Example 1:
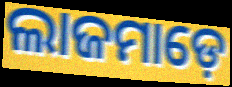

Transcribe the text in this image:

ଲାଜମାଡ଼େ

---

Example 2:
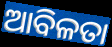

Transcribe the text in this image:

ଆବିଳତା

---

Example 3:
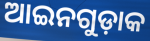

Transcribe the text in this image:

ଆଇନଗୁଡ଼ାକ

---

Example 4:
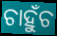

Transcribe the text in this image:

ଚାହୁଁଚ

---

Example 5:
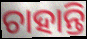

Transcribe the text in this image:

ଚାହାନ୍ତି